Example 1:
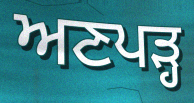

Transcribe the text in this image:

ਅਣਪੜ੍ਹ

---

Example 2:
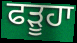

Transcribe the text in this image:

ਫੜੂਹਾ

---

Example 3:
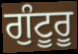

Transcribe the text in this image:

ਗੁੰਟੂਰੂ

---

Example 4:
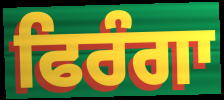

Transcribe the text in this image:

ਫਿਰੰਗਾ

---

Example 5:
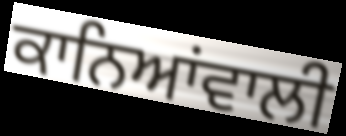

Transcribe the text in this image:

ਕਾਨਿਆਂਵਾਲੀ